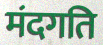
मंदगति